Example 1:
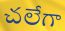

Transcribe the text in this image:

చలేగా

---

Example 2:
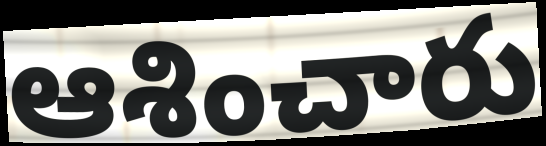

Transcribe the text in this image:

ఆశించారు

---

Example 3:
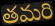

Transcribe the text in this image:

తమరి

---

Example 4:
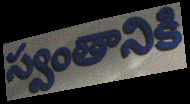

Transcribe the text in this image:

స్వంతానికి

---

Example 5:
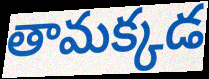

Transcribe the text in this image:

తామక్కడ